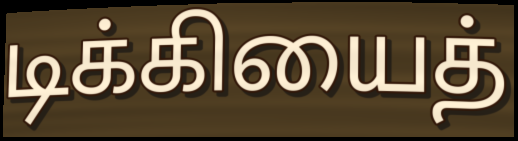
டிக்கியைத்